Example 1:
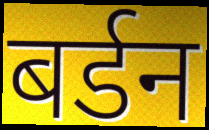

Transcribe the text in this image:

बर्डन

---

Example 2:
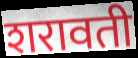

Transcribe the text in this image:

शरावती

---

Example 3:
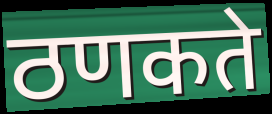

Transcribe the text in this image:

ठणकते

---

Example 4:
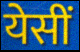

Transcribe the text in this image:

येसीं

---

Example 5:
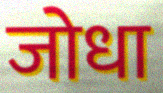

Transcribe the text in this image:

जोधा